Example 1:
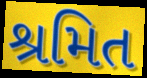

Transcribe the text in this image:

શ્રમિત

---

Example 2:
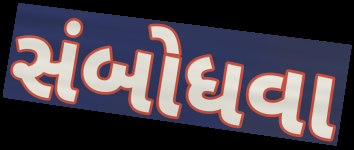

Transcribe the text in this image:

સંબોધવા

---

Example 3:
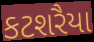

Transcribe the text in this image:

કટશરૈયા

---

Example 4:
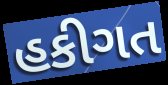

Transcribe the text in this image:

હકીગત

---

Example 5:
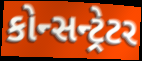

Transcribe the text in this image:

કોન્સન્ટ્રેટર